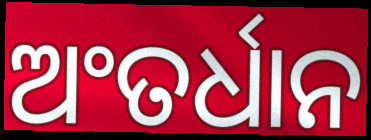
ଅଂତର୍ଧାନ